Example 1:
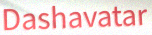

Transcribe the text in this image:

Dashavatar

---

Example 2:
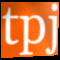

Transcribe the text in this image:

tpj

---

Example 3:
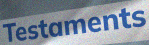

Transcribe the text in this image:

Testaments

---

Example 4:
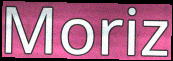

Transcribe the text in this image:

Moriz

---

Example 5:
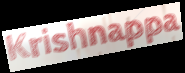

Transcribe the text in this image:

Krishnappa